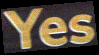
Yes